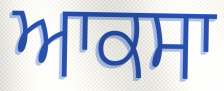
ਆਕਸਾ